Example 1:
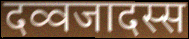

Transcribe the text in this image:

दव्वजादस्स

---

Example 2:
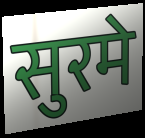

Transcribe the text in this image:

सुरमे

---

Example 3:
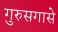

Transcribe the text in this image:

गुरुसगासे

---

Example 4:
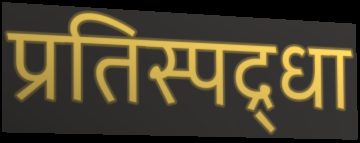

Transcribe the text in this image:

प्रतिस्पद्र्धा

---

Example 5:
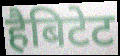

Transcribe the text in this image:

हैबिटेट